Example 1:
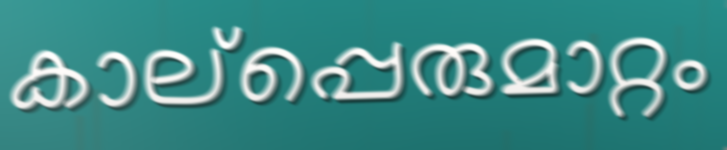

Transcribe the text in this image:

കാല്പ്പെരുമാറ്റം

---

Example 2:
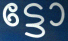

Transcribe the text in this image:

ട്ടോ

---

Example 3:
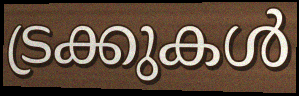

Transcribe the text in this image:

ട്രക്കുകൾ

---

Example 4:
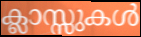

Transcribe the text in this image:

ക്ലാസ്സുകൾ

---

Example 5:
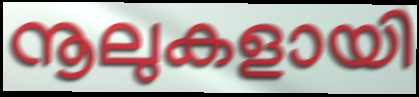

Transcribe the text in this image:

നൂലുകളായി